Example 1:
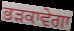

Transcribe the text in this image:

ਭੜਕਾਵੇਗਾ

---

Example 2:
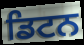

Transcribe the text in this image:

ਡਿਟਨ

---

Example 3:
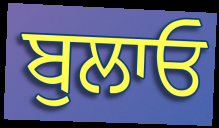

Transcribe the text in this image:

ਬੁਲਾਓ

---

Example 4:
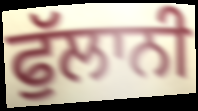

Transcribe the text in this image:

ਫੁੱਲਾਨੀ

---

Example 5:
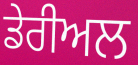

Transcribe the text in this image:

ਡੇਰੀਅਲ